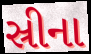
સ્રીના